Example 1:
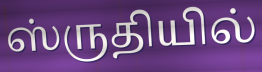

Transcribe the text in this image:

ஸ்ருதியில்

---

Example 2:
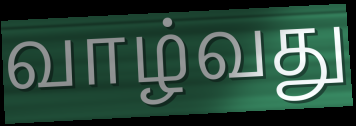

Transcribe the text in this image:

வாழ்வது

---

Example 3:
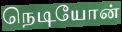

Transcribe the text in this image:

நெடியோன்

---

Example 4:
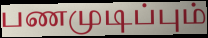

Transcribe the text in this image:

பணமுடிப்பும்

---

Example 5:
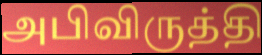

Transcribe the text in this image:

அபிவிருத்தி